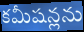
కమీషన్లను